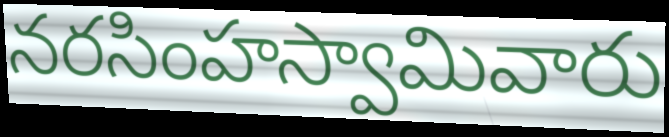
నరసింహస్వామివారు